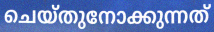
ചെയ്തുനോക്കുന്നത്